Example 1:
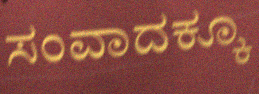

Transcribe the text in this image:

ಸಂವಾದಕ್ಕೂ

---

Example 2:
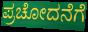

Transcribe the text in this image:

ಪ್ರಚೋದನೆಗೆ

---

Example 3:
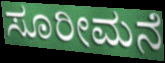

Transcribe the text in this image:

ಸೂರೀಮನೆ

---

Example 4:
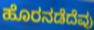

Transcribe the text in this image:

ಹೊರನಡೆದೆವು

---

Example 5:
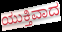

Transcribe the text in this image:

ಯುಕ್ತಿವಾದ